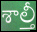
శాల్తీ